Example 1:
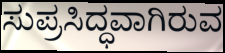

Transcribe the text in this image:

ಸುಪ್ರಸಿದ್ಧವಾಗಿರುವ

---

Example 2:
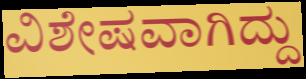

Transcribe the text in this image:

ವಿಶೇಷವಾಗಿದ್ದು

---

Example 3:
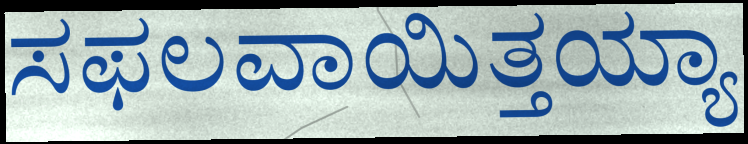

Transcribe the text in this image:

ಸಫಲವಾಯಿತ್ತಯ್ಯಾ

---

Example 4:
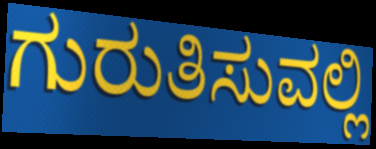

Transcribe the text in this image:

ಗುರುತಿಸುವಲ್ಲಿ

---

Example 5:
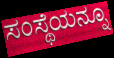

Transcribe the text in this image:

ಸಂಸ್ಥೆಯನ್ನೂ